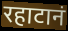
रहाटानं